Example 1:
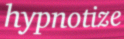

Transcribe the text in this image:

hypnotize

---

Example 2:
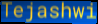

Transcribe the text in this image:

Tejashwi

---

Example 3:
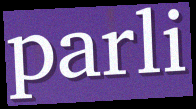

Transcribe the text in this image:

parli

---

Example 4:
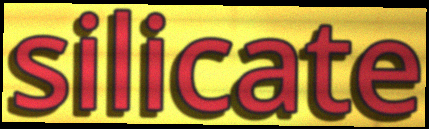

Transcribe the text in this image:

silicate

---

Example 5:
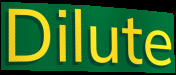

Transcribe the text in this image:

Dilute